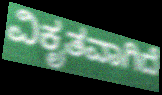
ವಿಕೃತವಾಗಿದೆ